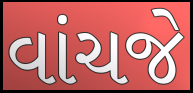
વાંચજે